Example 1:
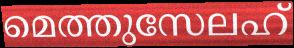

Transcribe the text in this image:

മെത്തുസേലഹ്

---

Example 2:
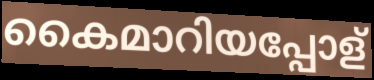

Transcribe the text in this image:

കൈമാറിയപ്പോള്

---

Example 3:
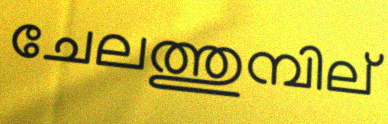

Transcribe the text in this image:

ചേലത്തുമ്പില്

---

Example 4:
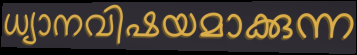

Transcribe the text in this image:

ധ്യാനവിഷയമാക്കുന്ന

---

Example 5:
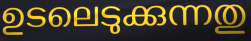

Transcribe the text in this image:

ഉടലെടുക്കുന്നതു